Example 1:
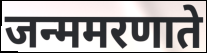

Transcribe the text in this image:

जन्ममरणाते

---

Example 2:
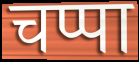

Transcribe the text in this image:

चप्पा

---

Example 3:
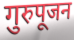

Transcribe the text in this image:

गुरुपूजन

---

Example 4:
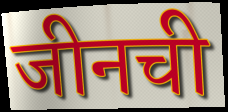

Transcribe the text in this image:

जीनची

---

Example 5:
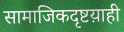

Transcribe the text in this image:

सामाजिकदृष्टय़ाही